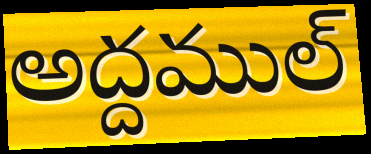
అద్దముల్